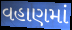
વહાણમાં